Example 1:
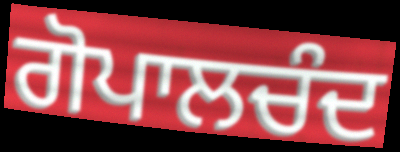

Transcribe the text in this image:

ਗੋਪਾਲਚੰਦ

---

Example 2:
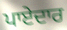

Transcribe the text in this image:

ਪਾਏਦਾਰ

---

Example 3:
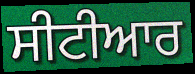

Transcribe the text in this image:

ਸੀਟੀਆਰ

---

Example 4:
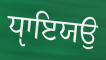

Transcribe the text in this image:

ਧੵਾਇਯਉ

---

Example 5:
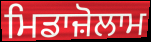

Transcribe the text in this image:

ਮਿਡਾਜ਼ੋਲਾਮ